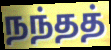
நந்தத்